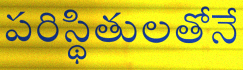
పరిస్థితులతోనే